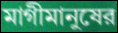
মাগীমানুষের